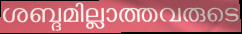
ശബ്ദമില്ലാത്തവരുടെ